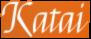
Katai